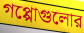
গপ্পোগুলোর